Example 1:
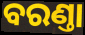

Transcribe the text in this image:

ବରଣ୍ତା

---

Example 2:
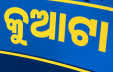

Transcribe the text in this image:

କୁଆଟା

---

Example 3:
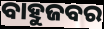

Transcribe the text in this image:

ବାହୁଜବର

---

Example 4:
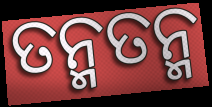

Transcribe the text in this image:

ତନ୍ମତନ୍ମ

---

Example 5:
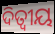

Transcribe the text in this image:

ଦିତ୍ୱୀୟ